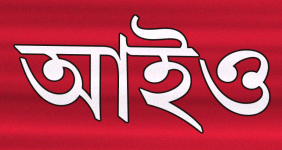
আইও